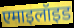
एमाइलॉइड